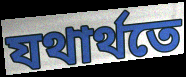
যথাৰ্থতে